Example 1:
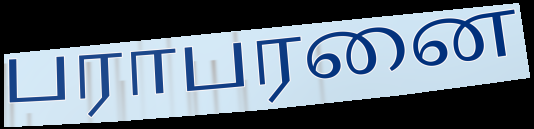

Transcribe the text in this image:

பராபரனை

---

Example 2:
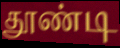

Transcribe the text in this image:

தூண்டி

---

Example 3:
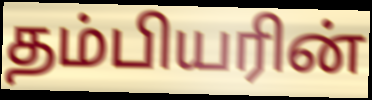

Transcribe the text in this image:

தம்பியரின்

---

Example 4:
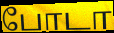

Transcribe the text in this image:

போடா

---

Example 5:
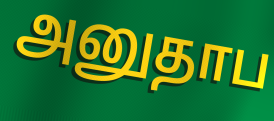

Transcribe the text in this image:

அனுதாப